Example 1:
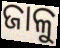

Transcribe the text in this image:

ଜାଳୁ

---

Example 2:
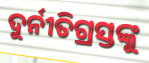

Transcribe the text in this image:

ଦୁର୍ନୀତିଗ୍ରସ୍ତଙ୍କୁ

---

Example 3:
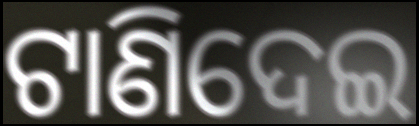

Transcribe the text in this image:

ଟାଣିଦେଇ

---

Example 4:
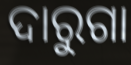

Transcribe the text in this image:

ଦାରୁଗା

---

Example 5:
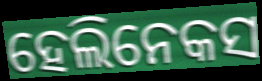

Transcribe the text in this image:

ହେଲିନେକସ